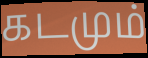
கடமும்